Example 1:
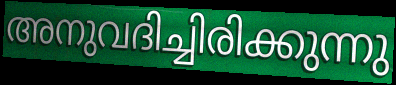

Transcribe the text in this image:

അനുവദിച്ചിരിക്കുന്നു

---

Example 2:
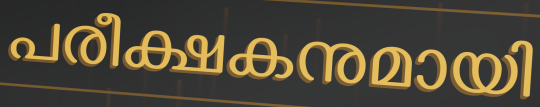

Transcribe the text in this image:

പരീക്ഷകനുമായി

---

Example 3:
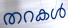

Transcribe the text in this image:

തറകൾ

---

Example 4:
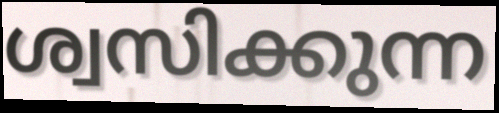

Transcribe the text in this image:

ശ്വസിക്കുന്ന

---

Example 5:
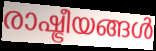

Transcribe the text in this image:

രാഷ്ട്രീയങ്ങൾ